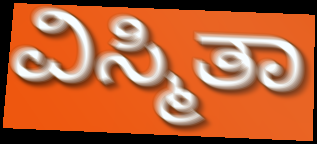
ವಿಸ್ಮಿತಾ